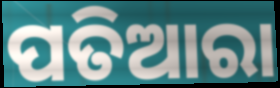
ପତିଆରା